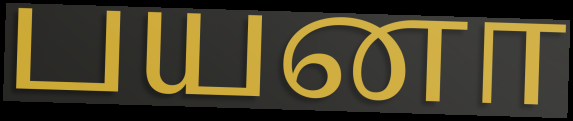
பயனா